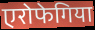
एरोफेगिया